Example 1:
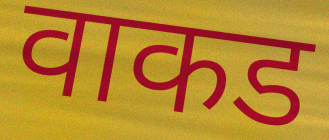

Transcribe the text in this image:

वाकड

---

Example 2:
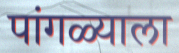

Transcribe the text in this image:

पांगळ्याला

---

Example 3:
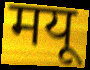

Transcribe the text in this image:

मयू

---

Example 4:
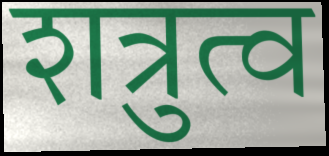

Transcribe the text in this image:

शत्रुत्व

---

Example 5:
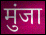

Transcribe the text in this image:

मुंजा